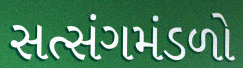
સત્સંગમંડળો